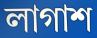
লাগাশ